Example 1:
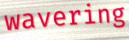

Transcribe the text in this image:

wavering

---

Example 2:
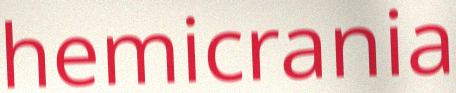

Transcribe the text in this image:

hemicrania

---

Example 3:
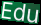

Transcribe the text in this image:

Edu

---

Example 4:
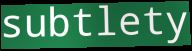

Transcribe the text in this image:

subtlety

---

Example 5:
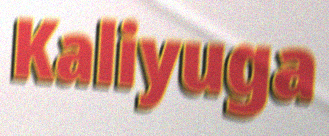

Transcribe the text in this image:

Kaliyuga